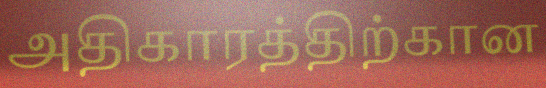
அதிகாரத்திற்கான